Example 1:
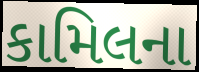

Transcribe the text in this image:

કામિલના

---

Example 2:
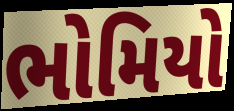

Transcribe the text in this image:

ભોમિયો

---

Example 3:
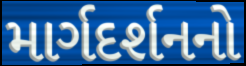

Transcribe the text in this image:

માર્ગદર્શનનો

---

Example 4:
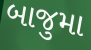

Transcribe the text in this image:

બાજુમા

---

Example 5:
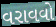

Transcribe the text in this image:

વરાવવો